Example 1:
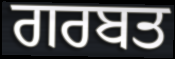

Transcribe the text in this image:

ਗਰਬਤ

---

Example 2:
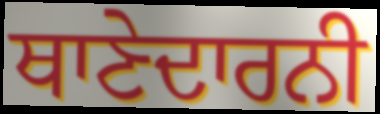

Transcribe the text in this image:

ਥਾਣੇਦਾਰਨੀ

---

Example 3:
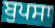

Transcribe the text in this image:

ਬੁਪਸਾ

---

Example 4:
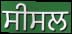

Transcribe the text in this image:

ਸੀਸਲ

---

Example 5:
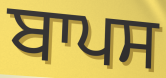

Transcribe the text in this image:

ਬਾਪਸ